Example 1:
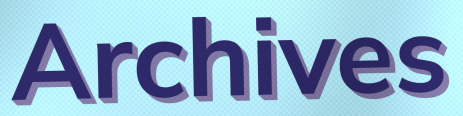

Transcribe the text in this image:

Archives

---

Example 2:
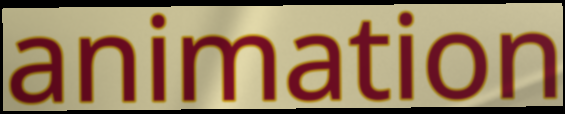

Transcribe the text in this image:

animation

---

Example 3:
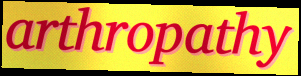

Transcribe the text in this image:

arthropathy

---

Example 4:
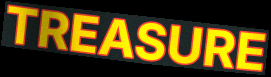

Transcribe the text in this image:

TREASURE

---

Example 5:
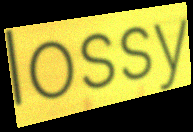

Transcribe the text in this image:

lossy